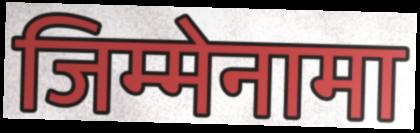
जिम्मेनामा